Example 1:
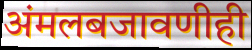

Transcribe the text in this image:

अंमलबजावणीही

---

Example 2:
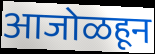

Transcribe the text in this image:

आजोळहून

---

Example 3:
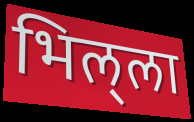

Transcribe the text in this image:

भिल्ला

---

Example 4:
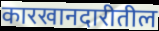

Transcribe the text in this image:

कारखानदारीतील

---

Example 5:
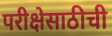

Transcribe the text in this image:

परीक्षेसाठीची